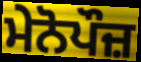
ਮੇਨੋਪੌਜ਼